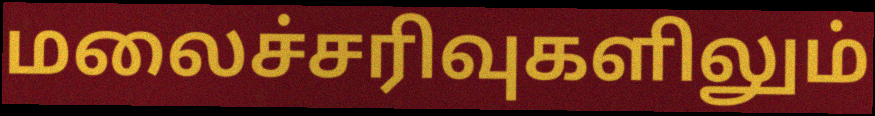
மலைச்சரிவுகளிலும்